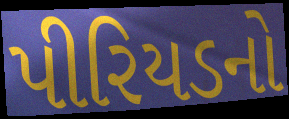
પીરિયડનો